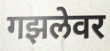
गझलेवर